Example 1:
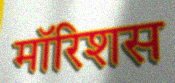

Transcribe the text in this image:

मॉरिशस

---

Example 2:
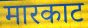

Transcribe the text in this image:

मारकाट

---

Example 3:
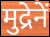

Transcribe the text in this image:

मुद्रेनें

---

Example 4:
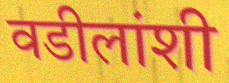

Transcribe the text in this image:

वडीलांशी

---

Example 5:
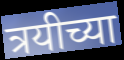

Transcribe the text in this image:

त्रयीच्या